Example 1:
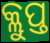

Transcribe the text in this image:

କ୍ଲୁପ୍ତ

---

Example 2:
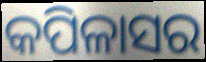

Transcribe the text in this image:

କପିଳାସର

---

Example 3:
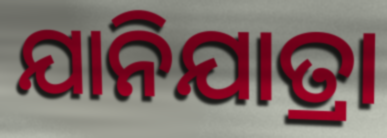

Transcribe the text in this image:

ଯାନିଯାତ୍ରା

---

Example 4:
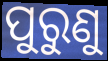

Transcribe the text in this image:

ପୁରୁଣୁ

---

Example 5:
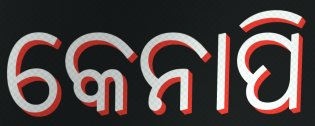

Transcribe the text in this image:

କେନାପି